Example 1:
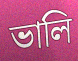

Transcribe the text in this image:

ভালি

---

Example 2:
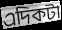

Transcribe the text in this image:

এদিকটা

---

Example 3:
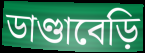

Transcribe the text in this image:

ডাণ্ডাবেড়ি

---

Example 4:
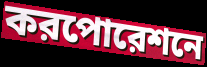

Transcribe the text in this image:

করপোরেশনে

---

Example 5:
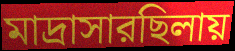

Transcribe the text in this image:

মাদ্রাসারছিলায়